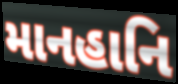
માનહાનિ